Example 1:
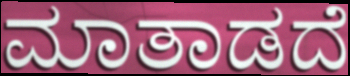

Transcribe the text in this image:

ಮಾತಾಡದೆ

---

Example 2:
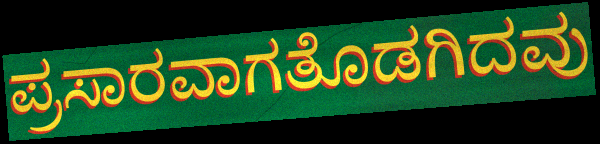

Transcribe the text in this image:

ಪ್ರಸಾರವಾಗತೊಡಗಿದವು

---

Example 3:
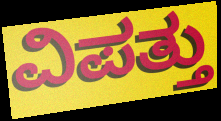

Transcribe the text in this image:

ವಿಪತ್ತು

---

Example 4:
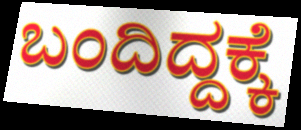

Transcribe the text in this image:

ಬಂದಿದ್ದಕ್ಕೆ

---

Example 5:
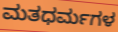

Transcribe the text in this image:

ಮತಧರ್ಮಗಳ